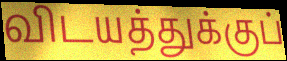
விடயத்துக்குப்